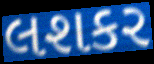
લશકર